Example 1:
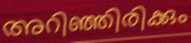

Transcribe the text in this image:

അറിഞ്ഞിരിക്കും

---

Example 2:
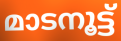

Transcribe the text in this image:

മാടനൂട്ട്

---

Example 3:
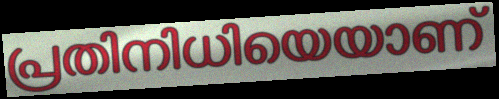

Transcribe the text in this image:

പ്രതിനിധിയെയാണ്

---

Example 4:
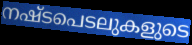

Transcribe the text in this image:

നഷ്ടപെടലുകളുടെ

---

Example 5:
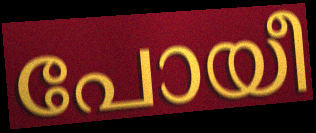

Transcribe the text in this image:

പോയീ